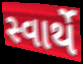
સ્વાર્થે